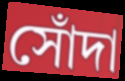
সোঁদা